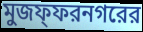
মুজফ্ফরনগরের